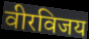
वीरविजय